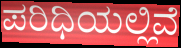
ಪರಿಧಿಯಲ್ಲಿವೆ